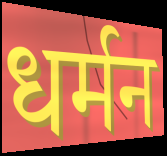
धर्मन